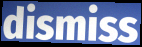
dismiss